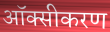
ऑक्सीकरण